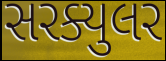
સરક્યુલર